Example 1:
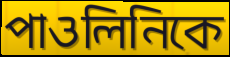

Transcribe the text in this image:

পাওলিনিকে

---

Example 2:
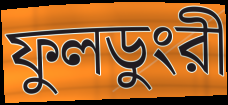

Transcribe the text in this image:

ফুলডুংরী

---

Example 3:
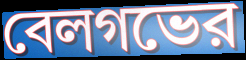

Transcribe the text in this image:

বেলগভের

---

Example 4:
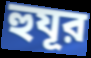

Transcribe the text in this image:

হুযূর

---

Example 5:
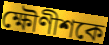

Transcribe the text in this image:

ক্ষৌণীশকে